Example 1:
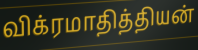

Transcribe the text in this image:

விக்ரமாதித்தியன்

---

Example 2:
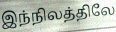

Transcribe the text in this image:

இந்நிலத்திலே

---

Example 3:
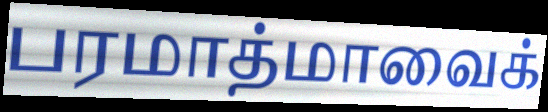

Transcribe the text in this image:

பரமாத்மாவைக்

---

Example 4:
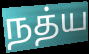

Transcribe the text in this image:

நத்ய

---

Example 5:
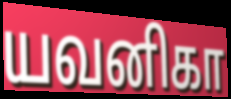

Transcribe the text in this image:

யவனிகா